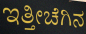
ಇತ್ತೀಚೆಗಿನ